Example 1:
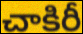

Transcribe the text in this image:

చాకిరీ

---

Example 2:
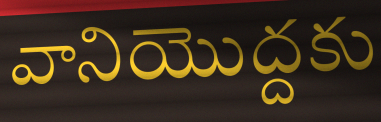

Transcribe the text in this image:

వానియొద్దకు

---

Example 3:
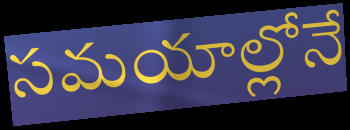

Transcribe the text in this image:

సమయాల్లోనే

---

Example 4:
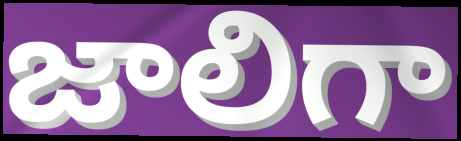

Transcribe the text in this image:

జాలిగా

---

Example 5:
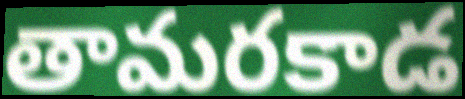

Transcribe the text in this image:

తామరకాడ